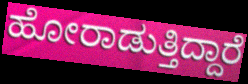
ಹೋರಾಡುತ್ತಿದ್ದಾರೆ